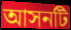
আসনটি